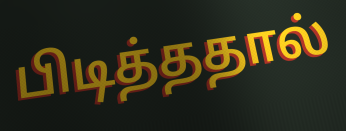
பிடித்ததால்